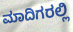
ಮಾದಿಗರಲ್ಲಿ